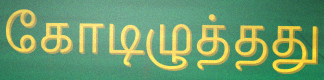
கோடிழுத்தது